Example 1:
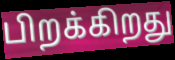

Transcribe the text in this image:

பிறக்கிறது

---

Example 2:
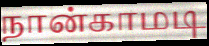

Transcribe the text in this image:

நான்காமடி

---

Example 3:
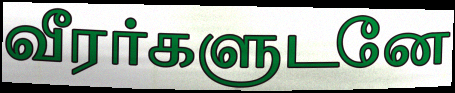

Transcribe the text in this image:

வீரர்களுடனே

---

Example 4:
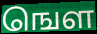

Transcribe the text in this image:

ஙௌ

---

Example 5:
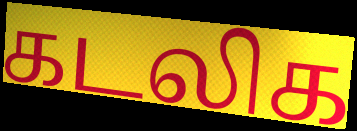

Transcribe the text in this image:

கடலிக